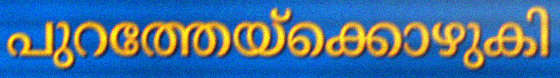
പുറത്തേയ്ക്കൊഴുകി